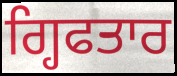
ਗ੍ਹਿਫਤਾਰ